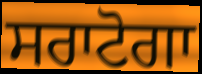
ਸਰਾਟੋਗਾ